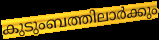
കുടുംബത്തിലാർക്കും